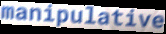
manipulative